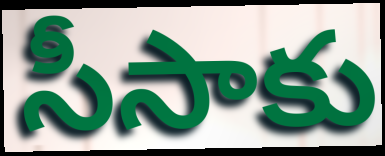
సీసాకు